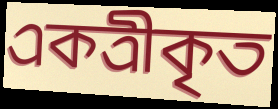
একত্রীকৃত